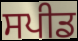
ਸਪੀਡ